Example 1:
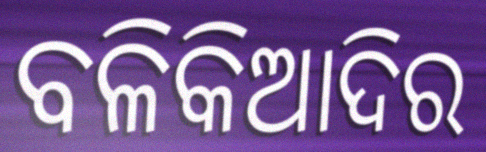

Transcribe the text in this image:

ବଳିକିଆଦିର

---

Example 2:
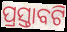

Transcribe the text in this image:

ପ୍ରସ୍ତାବଟି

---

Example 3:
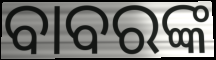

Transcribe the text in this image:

ବାବରଙ୍କ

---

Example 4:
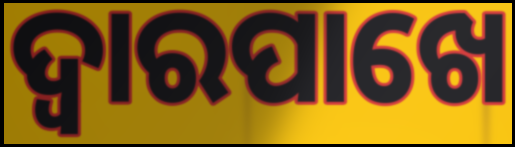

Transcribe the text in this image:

ଦ୍ୱାରପାଖେ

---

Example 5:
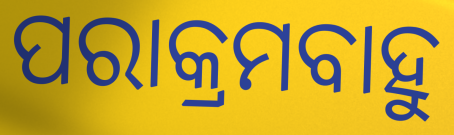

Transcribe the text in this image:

ପରାକ୍ରମବାହୁ